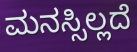
ಮನಸ್ಸಿಲ್ಲದೆ